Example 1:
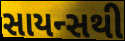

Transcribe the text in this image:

સાયન્સથી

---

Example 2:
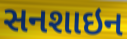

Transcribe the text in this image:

સનશાઇન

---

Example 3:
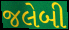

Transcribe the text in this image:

જલેબી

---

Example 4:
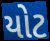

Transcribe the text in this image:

યોટ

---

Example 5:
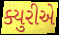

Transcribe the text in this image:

ક્યુરીએ